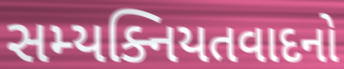
સમ્યક્નિયતવાદનો